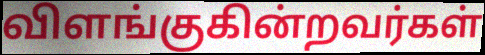
விளங்குகின்றவர்கள்